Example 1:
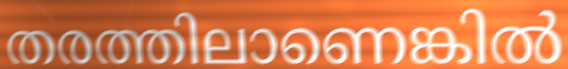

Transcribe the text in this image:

തരത്തിലാണെങ്കിൽ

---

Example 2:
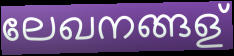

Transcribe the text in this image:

ലേഖനങ്ങള്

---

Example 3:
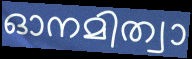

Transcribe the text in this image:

ഓനമിത്വാ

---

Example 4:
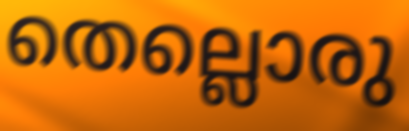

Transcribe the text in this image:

തെല്ലൊരു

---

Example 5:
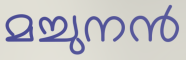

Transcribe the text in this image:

മച്ചുനൻ